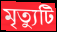
মৃত্যুটি